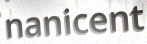
nanicent